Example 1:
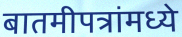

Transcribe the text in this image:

बातमीपत्रांमध्ये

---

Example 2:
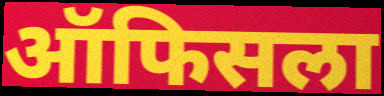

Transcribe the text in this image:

ऑफिसला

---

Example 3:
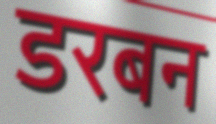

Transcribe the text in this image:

डरबन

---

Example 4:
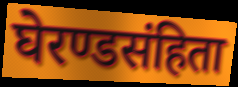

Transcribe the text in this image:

घेरण्डसंहिता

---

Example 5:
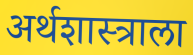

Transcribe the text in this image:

अर्थशास्त्राला